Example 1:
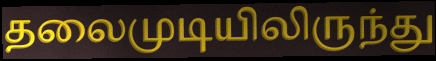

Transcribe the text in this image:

தலைமுடியிலிருந்து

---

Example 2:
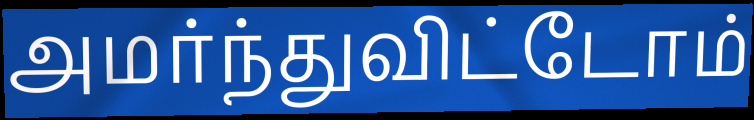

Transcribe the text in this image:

அமர்ந்துவிட்டோம்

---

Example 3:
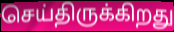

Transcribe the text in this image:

செய்திருக்கிறது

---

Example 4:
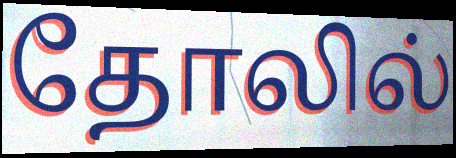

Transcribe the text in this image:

தோலில்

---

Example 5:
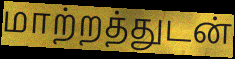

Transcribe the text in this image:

மாற்றத்துடன்